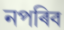
নপৰিব